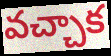
వచ్చాక